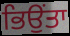
ਭਿਉਂਤਾ